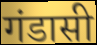
गंडासी